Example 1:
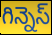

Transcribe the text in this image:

గిన్నెస్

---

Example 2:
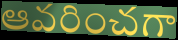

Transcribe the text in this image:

ఆవరించగా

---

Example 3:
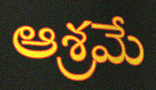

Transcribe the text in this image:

ఆశ్రమే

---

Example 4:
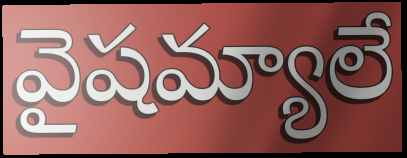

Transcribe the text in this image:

వైషమ్యాలే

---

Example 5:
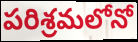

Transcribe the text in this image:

పరిశ్రమలోనో